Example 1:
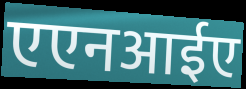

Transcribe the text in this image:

एएनआईए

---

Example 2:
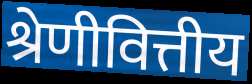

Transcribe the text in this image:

श्रेणीवित्तीय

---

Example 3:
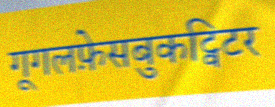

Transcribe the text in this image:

गूगलफ़ेसबुकट्विटर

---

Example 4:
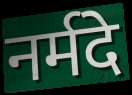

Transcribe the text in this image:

नर्मदे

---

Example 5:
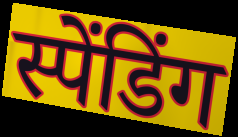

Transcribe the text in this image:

स्पेंडिंग